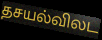
தசயல்விலட